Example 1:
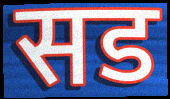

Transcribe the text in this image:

सड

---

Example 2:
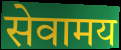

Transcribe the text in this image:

सेवामय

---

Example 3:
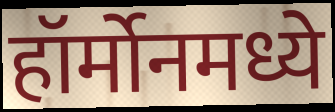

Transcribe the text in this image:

हॉर्मोनमध्ये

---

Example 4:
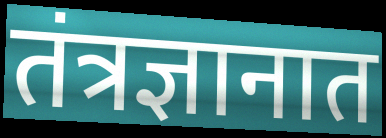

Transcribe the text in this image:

तंत्रज्ञानात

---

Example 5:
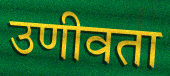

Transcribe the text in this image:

उणीवता